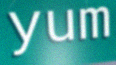
yum